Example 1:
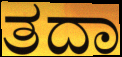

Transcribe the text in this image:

ತದಾ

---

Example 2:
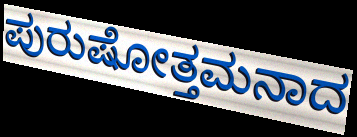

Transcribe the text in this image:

ಪುರುಷೋತ್ತಮನಾದ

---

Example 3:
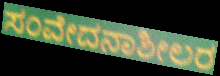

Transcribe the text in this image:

ಸಂವೇದನಾಶೀಲರ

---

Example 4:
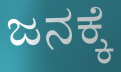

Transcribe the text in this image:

ಜನಕ್ಕೆ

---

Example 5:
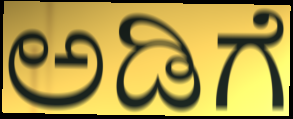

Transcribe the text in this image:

ಅಡಿಗೆ